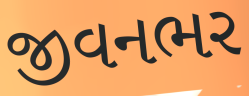
જીવનભર